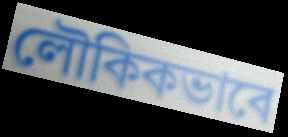
লৌকিকভাবে